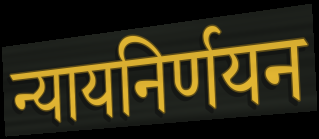
न्यायनिर्णयन